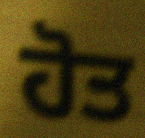
ਹੋਤ